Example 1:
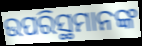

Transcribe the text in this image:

ଉପରିସ୍ଥମାନଙ୍କ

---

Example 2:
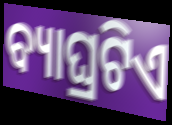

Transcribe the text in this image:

ବ୍ୟାଘ୍ରଟିଏ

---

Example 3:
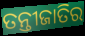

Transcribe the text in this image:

ତନ୍ତୀଜାତିର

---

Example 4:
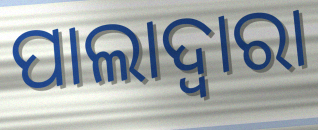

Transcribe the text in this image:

ପାଲାଦ୍ୱାରା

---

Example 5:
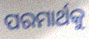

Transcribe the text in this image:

ପରମାର୍ଥକୁ